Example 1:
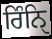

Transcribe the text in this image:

ਰਿੰਨਿੑ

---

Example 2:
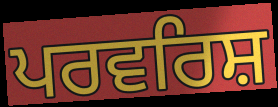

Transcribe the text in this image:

ਪਰਵਰਿਸ਼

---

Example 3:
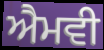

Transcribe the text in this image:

ਐਮਵੀ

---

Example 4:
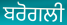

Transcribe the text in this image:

ਬਰੋਗਲੀ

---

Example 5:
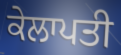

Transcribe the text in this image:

ਕੇਲਾਪਤੀ